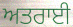
ਅਤਰਾਈ